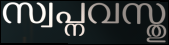
സ്വപ്നവസ്തു